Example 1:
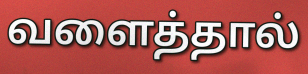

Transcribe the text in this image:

வளைத்தால்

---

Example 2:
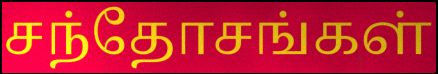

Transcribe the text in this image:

சந்தோசங்கள்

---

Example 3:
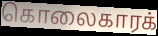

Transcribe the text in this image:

கொலைகாரக்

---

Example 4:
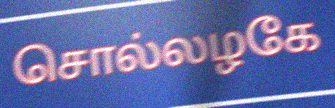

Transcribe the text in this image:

சொல்லழகே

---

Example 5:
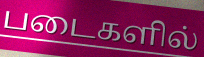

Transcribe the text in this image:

படைகளில்